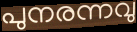
പുനരന്നവു